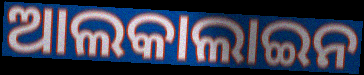
ଆଲକାଲାଇନ